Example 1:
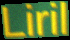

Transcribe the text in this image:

Liril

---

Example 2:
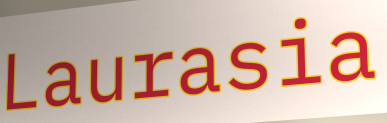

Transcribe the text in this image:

Laurasia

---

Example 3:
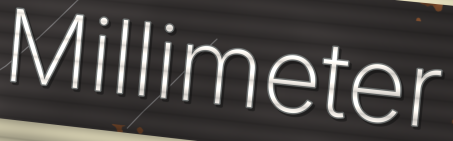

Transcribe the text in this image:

Millimeter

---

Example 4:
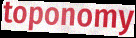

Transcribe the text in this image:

toponomy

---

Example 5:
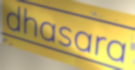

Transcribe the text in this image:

dhasara